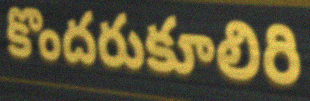
కొందరుకూలిరి